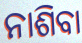
ନାଶିବା